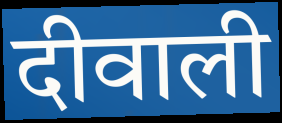
दीवाली